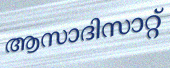
ആസാദിസാറ്റ്